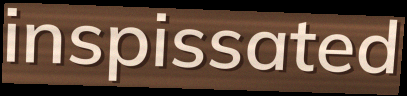
inspissated